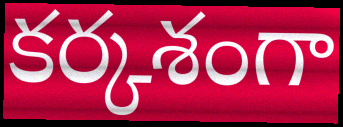
కర్కశంగా